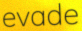
evade